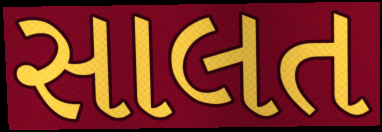
સાલત